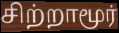
சிற்றாமூர்